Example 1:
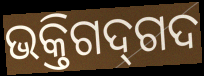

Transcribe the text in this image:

ଭକ୍ତିଗଦ୍‌ଗଦ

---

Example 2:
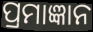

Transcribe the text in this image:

ପ୍ରମାଜ୍ଞାନ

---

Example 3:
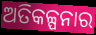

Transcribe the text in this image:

ଅତିକଳ୍ପନାର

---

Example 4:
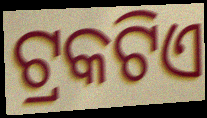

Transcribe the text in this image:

ଟ୍ରକଟିଏ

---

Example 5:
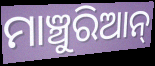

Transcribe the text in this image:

ମାଞ୍ଚୁରିଆନ୍